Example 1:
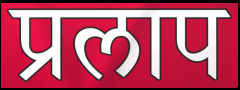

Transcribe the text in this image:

प्रलाप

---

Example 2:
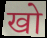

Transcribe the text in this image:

खो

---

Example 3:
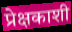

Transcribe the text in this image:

प्रेक्षकाशी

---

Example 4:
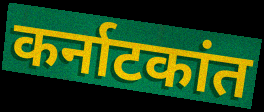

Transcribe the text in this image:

कर्नाटकांत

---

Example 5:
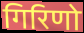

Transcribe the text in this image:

गिरिणो